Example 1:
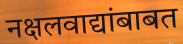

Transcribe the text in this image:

नक्षलवाद्यांबाबत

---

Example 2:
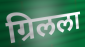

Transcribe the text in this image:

ग्रिलला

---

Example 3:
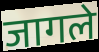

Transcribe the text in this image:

जागले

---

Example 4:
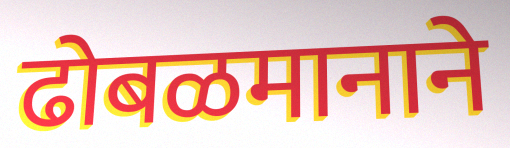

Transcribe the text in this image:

ढोबळमानाने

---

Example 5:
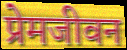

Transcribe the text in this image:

प्रेमजीवन